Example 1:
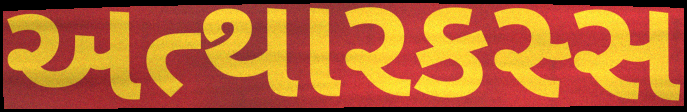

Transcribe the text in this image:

અત્થારકસ્સ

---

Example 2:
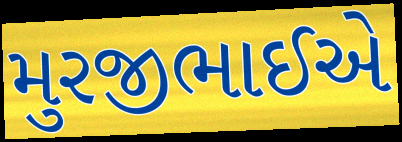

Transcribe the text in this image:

મુરજીભાઈએ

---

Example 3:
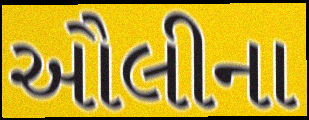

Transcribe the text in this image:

ઔલીના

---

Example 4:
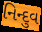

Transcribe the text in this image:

નિન્દુવ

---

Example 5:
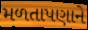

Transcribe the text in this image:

મળતાપણાને